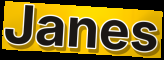
Janes